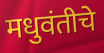
मधुवंतीचे